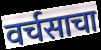
वर्चसाचा